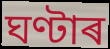
ঘণ্টাৰ